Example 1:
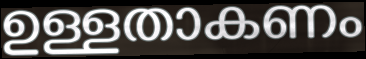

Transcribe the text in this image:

ഉള്ളതാകണം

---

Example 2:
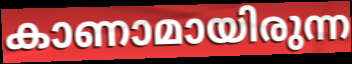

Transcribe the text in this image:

കാണാമായിരുന്ന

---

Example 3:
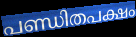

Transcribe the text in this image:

പണ്ഡിതപക്ഷം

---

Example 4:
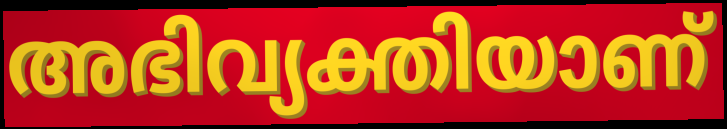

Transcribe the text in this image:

അഭിവ്യക്തിയാണ്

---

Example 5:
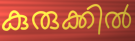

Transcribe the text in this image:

കുരുക്കിൽ